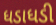
ધડાધડી